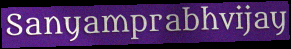
Sanyamprabhvijay